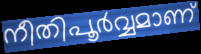
നീതിപൂർവ്വമാണ്